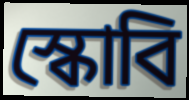
স্কোবি